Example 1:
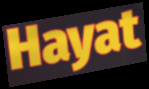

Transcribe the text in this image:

Hayat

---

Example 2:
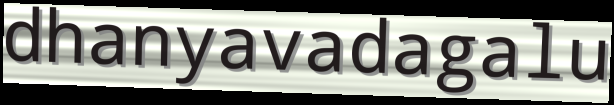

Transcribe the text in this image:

dhanyavadagalu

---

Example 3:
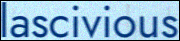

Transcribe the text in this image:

lascivious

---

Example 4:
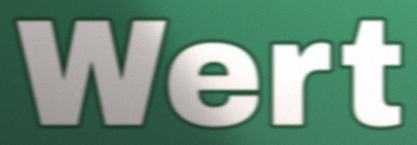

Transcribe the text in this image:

Wert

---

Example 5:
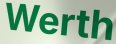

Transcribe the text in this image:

Werth